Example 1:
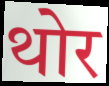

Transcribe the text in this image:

थोर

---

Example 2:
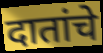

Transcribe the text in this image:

दातांचे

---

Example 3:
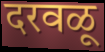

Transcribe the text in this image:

दरवळू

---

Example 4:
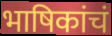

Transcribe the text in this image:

भाषिकांचं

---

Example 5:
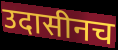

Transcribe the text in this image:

उदासीनच